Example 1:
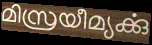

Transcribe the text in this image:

മിസ്രയീമ്യൎക്കു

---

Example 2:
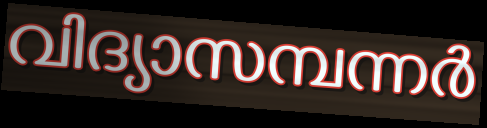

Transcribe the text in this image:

വിദ്യാസമ്പന്നർ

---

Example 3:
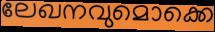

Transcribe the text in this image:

ലേഖനവുമൊക്കെ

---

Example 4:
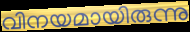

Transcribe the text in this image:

വിനയമായിരുന്നു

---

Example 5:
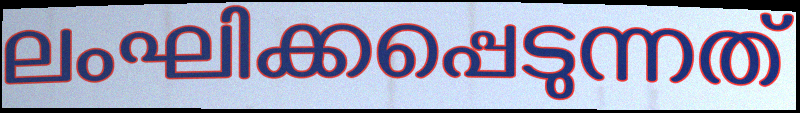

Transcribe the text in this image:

ലംഘിക്കപ്പെടുന്നത്